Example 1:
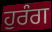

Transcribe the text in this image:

ਹੁਰੰਗ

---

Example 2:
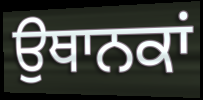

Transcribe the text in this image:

ਉਥਾਨਕਾਂ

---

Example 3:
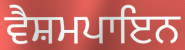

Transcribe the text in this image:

ਵੈਸ਼ਮਪਾਇਨ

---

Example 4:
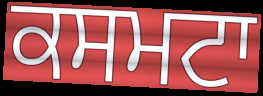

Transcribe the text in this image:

ਕਸਮਟਾ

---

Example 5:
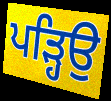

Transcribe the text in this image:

ਪੜ੍ਹਿਉ